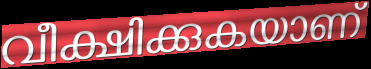
വീക്ഷിക്കുകയാണ്